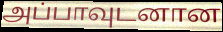
அப்பாவுடனான